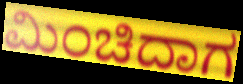
ಮಿಂಚಿದಾಗ